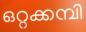
ഒറ്റക്കമ്പി